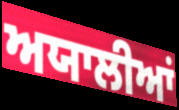
ਅਯਾਲੀਆਂ